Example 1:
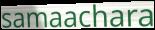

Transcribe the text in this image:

samaachara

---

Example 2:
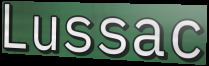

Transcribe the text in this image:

Lussac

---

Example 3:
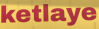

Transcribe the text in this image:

ketlaye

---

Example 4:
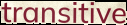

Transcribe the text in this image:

transitive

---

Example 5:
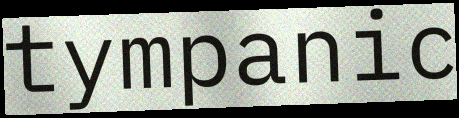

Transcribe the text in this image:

tympanic